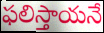
ఫలిస్తాయనే